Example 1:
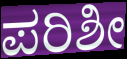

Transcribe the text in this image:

ಪರಿಶೀ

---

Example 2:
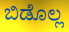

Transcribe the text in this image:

ಬಿಡೊಲ್ಲ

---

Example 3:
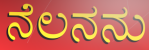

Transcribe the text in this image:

ನೆಲನನು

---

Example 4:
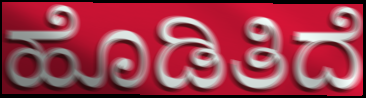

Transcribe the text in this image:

ಹೊಡಿತಿದೆ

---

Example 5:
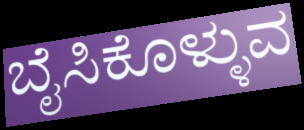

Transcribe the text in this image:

ಬೈಸಿಕೊಳ್ಳುವ